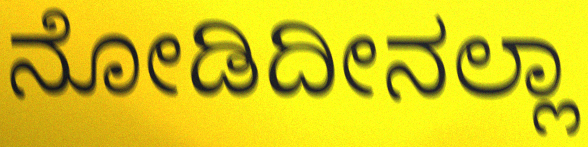
ನೋಡಿದೀನಲ್ಲಾ